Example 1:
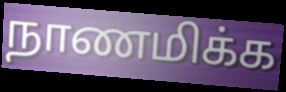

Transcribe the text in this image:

நாணமிக்க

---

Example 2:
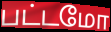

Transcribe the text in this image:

பட்டமோ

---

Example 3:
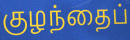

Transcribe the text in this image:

குழந்தைப்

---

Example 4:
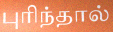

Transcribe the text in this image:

புரிந்தால்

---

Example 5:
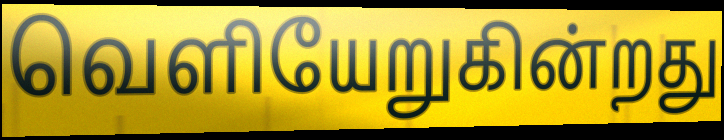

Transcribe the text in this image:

வெளியேறுகின்றது